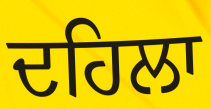
ਦਹਿਲਾ